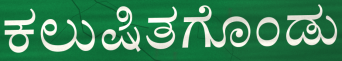
ಕಲುಷಿತಗೊಂಡು